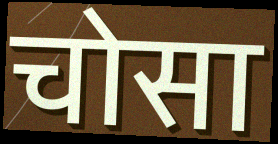
चोसा